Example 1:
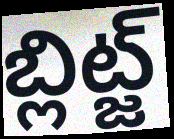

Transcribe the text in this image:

బ్లిట్జ్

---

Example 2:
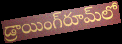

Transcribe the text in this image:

డ్రాయింగ్‌రూమ్‌లో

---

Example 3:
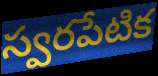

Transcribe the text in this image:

స్వరపేటిక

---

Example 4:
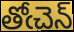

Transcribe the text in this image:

తోఁచెన్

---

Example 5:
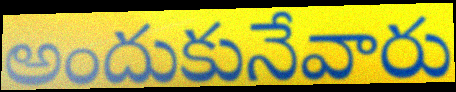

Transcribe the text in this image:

అందుకునేవారు